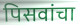
पिसवांचा